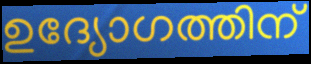
ഉദ്യോഗത്തിന്